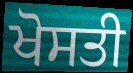
ਖੋਸਤੀ